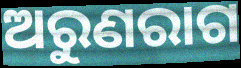
ଅରୁଣରାଗ